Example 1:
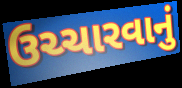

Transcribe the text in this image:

ઉચ્ચારવાનું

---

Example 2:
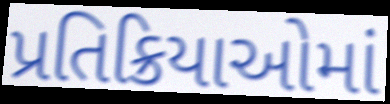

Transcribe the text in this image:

પ્રતિક્રિયાઓમાં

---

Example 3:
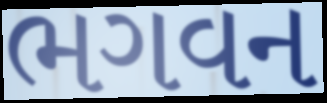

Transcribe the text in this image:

ભગવન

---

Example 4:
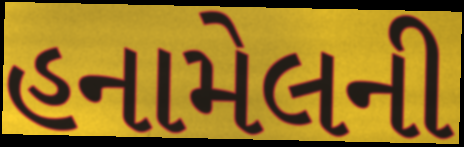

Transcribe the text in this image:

હનામેલની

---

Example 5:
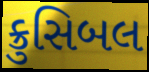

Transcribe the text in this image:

ક્રુસિબલ